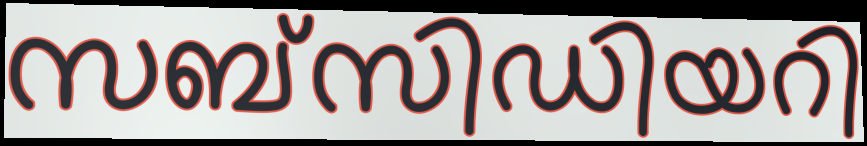
സബ്സിഡിയറി